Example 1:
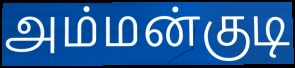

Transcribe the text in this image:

அம்மன்குடி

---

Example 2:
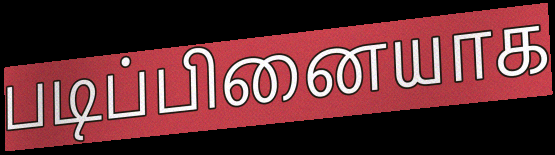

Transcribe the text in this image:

படிப்பினையாக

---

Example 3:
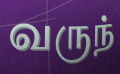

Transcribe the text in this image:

வருந்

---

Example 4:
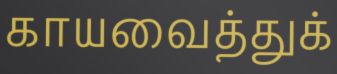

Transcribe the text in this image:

காயவைத்துக்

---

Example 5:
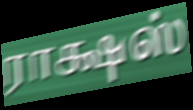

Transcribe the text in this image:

ராக்ஷஸ்